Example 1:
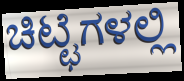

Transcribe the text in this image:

ಚಿಟ್ಟೆಗಳಲ್ಲಿ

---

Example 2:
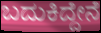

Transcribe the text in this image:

ಬದುಕಿದ್ದೇನೆ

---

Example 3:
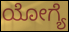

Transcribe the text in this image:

ಯೋಗ್ಯೆ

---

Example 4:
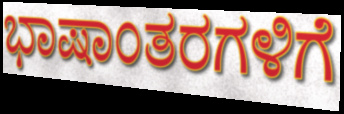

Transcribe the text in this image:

ಭಾಷಾಂತರಗಳಿಗೆ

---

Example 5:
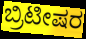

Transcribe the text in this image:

ಬ್ರಿಟೀಷರ